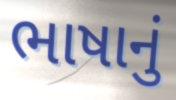
ભાષાનું